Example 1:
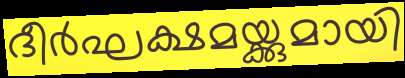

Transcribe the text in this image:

ദീർഘക്ഷമയ്ക്കുമായി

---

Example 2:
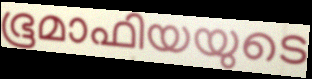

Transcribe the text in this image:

ഭൂമാഫിയയുടെ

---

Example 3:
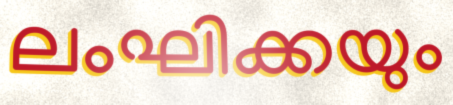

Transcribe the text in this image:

ലംഘിക്കയും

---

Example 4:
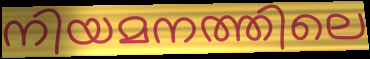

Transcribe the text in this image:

നിയമനത്തിലെ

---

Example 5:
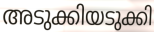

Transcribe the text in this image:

അടുക്കിയടുക്കി